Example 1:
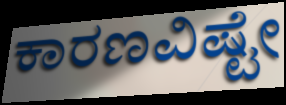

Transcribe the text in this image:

ಕಾರಣವಿಷ್ಟೇ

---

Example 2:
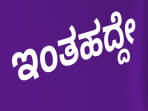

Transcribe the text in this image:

ಇಂತಹದ್ದೇ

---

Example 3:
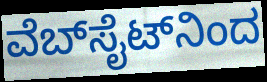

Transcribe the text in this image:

ವೆಬ್‍ಸೈಟ್‍ನಿಂದ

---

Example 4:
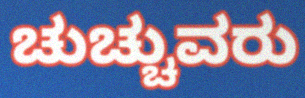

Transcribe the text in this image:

ಚುಚ್ಚುವರು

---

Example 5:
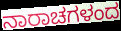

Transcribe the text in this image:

ನಾರಾಚಗಳಂದ